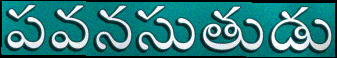
పవనసుతుడు